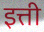
इत्ती